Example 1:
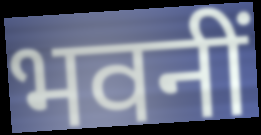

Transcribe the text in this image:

भवनीं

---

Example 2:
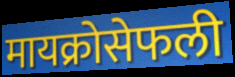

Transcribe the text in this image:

मायक्रोसेफली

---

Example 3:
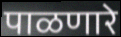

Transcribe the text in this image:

पाळणारे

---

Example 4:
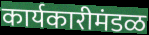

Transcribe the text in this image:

कार्यकारीमंडळ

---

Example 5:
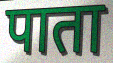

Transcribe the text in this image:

पाता